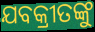
ଯବକ୍ରୀତଙ୍କୁ